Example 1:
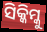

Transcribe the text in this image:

ସିକ୍କିମ୍କୁ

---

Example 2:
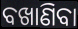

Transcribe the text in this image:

ବଖାଣିବା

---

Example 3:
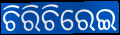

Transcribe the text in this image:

ଚିରିଚିରେଇ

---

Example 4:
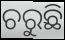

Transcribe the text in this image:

ଚରୁଛି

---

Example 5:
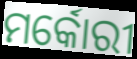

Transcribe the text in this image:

ମର୍କୋରୀ